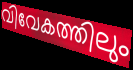
വിവേകത്തിലും